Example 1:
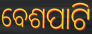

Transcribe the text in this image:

ବେଶପାଟି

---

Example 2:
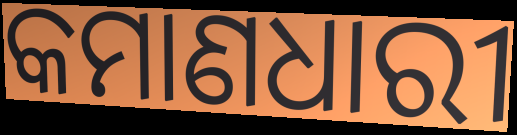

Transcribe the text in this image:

କମାଣଧାରୀ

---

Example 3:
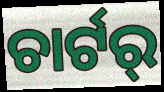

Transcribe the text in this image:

ଚାର୍ଟର୍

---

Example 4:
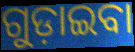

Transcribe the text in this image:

ଗୁଡ଼ାଇବା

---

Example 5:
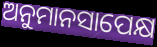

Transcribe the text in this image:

ଅନୁମାନସାପେକ୍ଷ